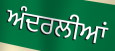
ਅੰਦਰਲੀਆਂ